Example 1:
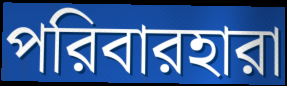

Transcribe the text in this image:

পরিবারহারা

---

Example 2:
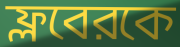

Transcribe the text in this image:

ফ্লবেরকে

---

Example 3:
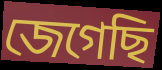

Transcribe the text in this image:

জেগেছি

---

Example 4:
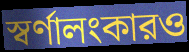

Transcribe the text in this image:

স্বর্ণালংকারও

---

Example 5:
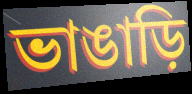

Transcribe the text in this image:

ভাঙাড়ি